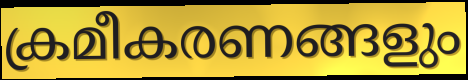
ക്രമീകരണങ്ങളും